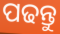
ପଢନ୍ତୁ